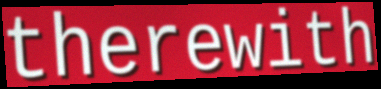
therewith